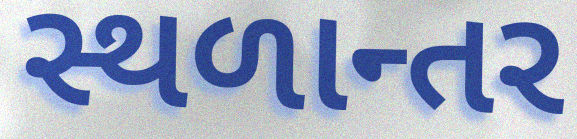
સ્થળાન્તર